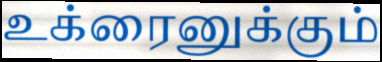
உக்ரைனுக்கும்